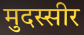
मुदस्सीर